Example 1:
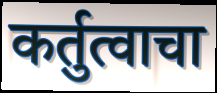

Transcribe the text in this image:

कर्तुत्वाचा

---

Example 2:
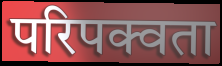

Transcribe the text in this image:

परिपक्‍वता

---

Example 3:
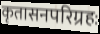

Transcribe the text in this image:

कृतासनपरिग्रहः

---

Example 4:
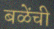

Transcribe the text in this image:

बळेंची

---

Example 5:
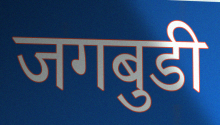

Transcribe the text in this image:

जगबुडी